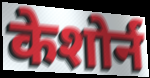
केशोर्न